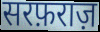
सरफ़राज़